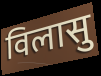
विलासु